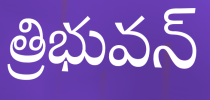
త్రిభువన్